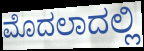
ಮೊದಲಾದಲ್ಲಿ